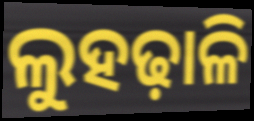
ଲୁହଢ଼ାଳି